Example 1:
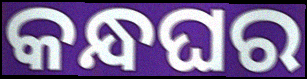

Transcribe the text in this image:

କନ୍ଧଘର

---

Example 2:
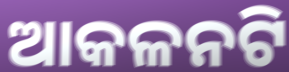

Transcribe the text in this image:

ଆକଳନଟି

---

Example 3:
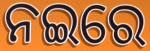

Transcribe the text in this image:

ନଇରେ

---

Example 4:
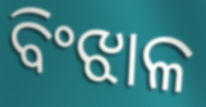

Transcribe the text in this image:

ବିଂଝାଳ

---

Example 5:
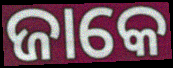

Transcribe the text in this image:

ଜାକେ